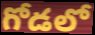
గోడలో